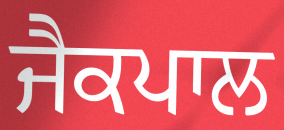
ਜੈਕਪਾਲ